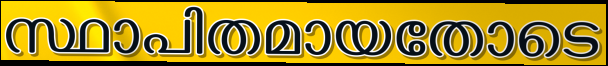
സ്ഥാപിതമായതോടെ